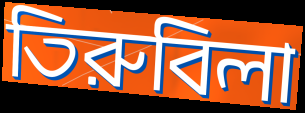
তিৰুবিলা